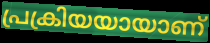
പ്രക്രിയയായാണ്